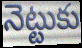
నెట్టుకు